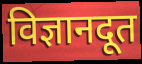
विज्ञानदूत